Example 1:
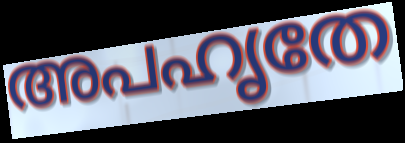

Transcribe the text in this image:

അപഹൃതേ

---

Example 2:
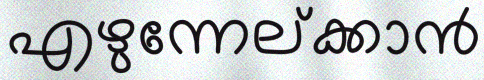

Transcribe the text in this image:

എഴുന്നേല്ക്കാൻ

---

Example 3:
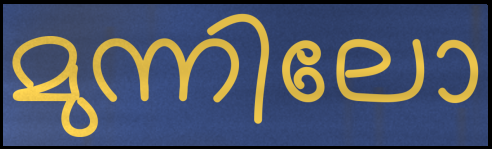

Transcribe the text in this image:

മുന്നിലോ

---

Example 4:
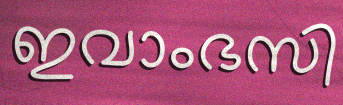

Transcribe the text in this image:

ഇവാംഭസി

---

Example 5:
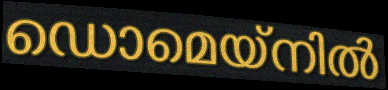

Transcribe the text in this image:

ഡൊമെയ്നിൽ